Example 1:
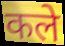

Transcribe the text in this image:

कले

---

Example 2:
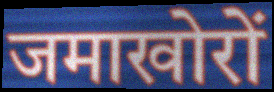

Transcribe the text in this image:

जमाखोरों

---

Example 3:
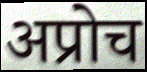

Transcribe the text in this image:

अप्रोच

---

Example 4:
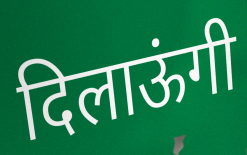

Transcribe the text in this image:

दिलाऊंगी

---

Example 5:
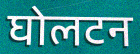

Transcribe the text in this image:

घोलटन